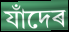
যাঁদেৰ